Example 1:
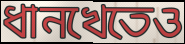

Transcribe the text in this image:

ধানখেতেও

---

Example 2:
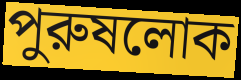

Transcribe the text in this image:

পুরুষলোক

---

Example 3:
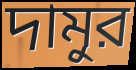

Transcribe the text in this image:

দামুর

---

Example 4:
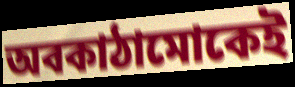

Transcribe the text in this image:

অবকাঠামোকেই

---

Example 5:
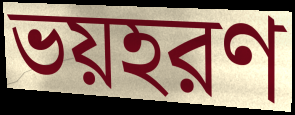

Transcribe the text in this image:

ভয়হরণ